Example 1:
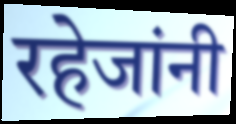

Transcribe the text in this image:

रहेजांनी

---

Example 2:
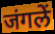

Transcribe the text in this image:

जंगलें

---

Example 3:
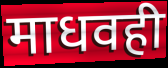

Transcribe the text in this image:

माधवही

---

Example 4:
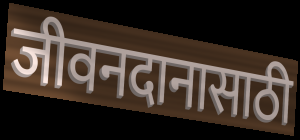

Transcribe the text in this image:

जीवनदानासाठी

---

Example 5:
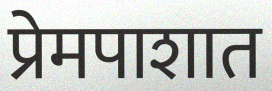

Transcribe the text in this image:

प्रेमपाशात